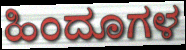
ಹಿಂದೂಗಳ